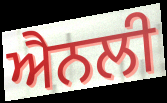
ਐਨਲੀ